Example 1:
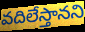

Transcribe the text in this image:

వదిలేస్తానని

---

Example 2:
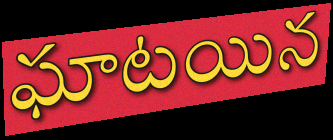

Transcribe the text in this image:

ఘాటయిన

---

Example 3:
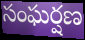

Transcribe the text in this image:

సంఘర్షణ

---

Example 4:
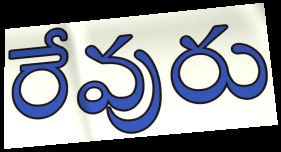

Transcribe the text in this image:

రేవురు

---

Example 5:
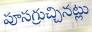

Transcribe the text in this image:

పూసగ్రుచ్చినట్లు